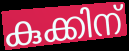
കുക്കിന്